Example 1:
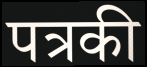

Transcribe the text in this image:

पत्रकी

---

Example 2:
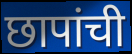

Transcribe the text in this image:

छापांची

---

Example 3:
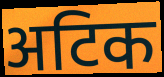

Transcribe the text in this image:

अटिक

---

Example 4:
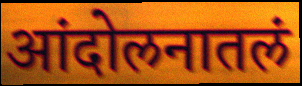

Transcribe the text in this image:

आंदोलनातलं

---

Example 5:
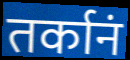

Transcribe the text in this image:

तर्कानं